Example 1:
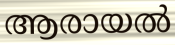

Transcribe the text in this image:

ആരായൽ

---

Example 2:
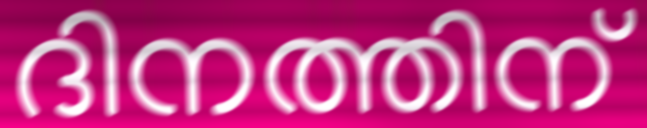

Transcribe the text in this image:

ദിനത്തിന്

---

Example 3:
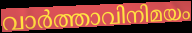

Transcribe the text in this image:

വാർത്താവിനിമയം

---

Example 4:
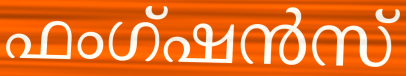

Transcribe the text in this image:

ഫംഗ്ഷൻസ്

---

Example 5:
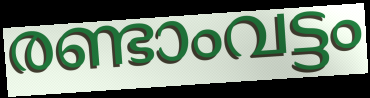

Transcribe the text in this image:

രണ്ടാംവട്ടം